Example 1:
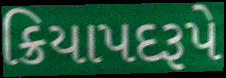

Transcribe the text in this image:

ક્રિયાપદરૂપે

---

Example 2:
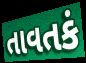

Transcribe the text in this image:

તાવતકં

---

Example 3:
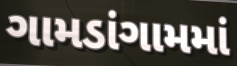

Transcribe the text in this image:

ગામડાંગામમાં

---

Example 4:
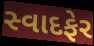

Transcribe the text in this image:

સ્વાદફેર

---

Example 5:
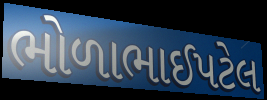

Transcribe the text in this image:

ભોળાભાઈપટેલ